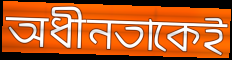
অধীনতাকেই